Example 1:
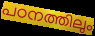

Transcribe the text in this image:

പഠനത്തിലും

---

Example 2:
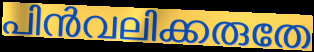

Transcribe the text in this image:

പിൻവലിക്കരുതേ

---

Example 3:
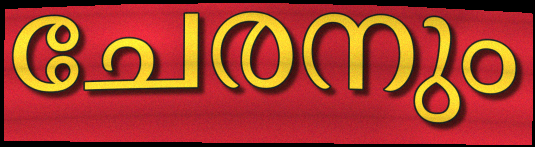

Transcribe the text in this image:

ചേരനും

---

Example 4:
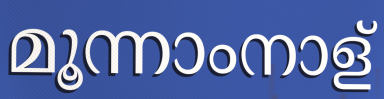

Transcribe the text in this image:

മൂന്നാംനാള്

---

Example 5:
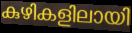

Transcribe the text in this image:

കുഴികളിലായി